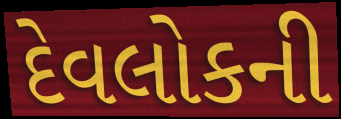
દેવલોકની